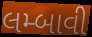
લમ્બાવી